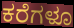
ಕರೆಗಳೂ